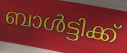
ബാൾട്ടിക്ക്